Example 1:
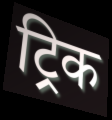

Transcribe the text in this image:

ट्रिक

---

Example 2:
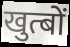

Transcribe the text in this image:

खुत्बों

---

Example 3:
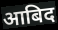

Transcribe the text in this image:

आबिद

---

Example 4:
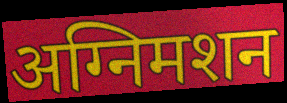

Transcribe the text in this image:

अग्निमशन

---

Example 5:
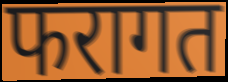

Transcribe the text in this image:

फरागत